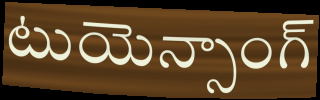
టుయెన్సాంగ్